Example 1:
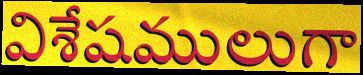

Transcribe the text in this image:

విశేషములుగా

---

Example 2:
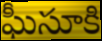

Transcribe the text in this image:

ఘీసూకి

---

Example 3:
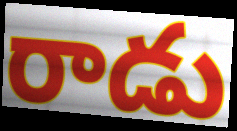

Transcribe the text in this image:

రాడు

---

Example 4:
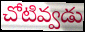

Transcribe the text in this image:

చోటివ్వడు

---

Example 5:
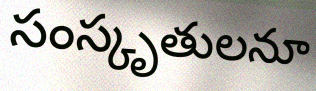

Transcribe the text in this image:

సంస్కృతులనూ